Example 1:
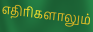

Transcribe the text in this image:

எதிரிகளாலும்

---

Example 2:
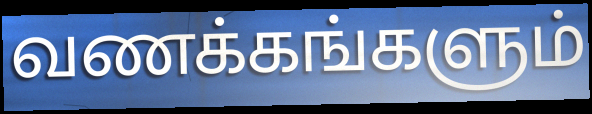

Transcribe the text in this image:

வணக்கங்களும்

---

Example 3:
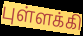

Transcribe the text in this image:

புள்ளக்கி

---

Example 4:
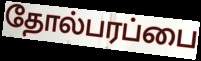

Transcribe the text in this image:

தோல்பரப்பை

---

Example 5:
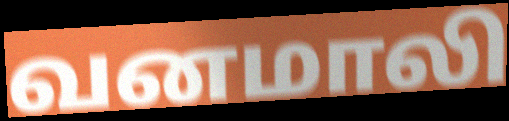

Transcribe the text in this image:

வனமாலி